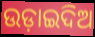
ଉଡ଼ାଇଦିଅ